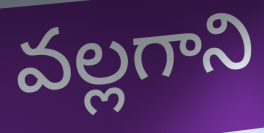
వల్లగాని